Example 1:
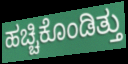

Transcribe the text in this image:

ಹಚ್ಚಿಕೊಂಡಿತ್ತು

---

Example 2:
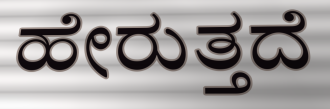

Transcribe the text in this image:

ಹೇರುತ್ತದೆ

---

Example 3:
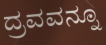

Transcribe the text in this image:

ದ್ರವವನ್ನೂ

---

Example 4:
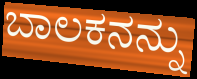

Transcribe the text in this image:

ಬಾಲಕನನ್ನು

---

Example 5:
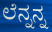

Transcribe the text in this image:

ಲೆನ್ನನ್ನ